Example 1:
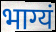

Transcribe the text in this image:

भाग्यं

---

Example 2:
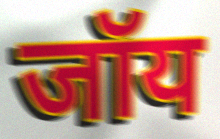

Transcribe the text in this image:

जॉय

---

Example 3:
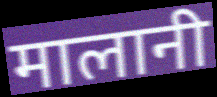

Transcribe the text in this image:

मालानी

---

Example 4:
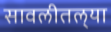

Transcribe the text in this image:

सावलीतल्या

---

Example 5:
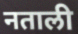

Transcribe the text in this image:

नताली